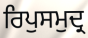
ਰਿਪੁਸਮੁਦ੍ਰ